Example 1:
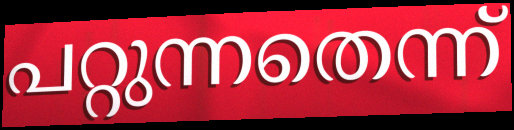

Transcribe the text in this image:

പറ്റുന്നതെന്ന്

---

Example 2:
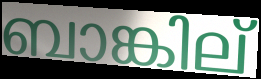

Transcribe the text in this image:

ബാങ്കില്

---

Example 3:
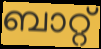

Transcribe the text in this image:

ബാറ്റ്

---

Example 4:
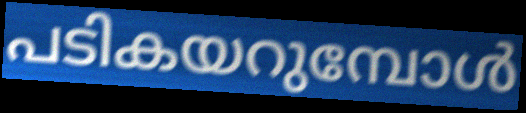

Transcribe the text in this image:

പടികയറുമ്പോൾ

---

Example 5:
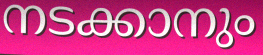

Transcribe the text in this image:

നടക്കാനും